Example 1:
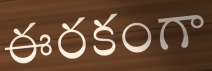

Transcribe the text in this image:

ఈరకంగా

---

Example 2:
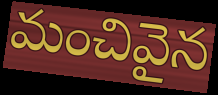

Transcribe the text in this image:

మంచివైన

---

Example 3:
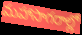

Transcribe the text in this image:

మహాసాగరాల్లో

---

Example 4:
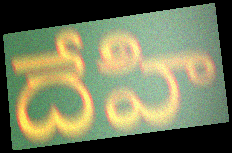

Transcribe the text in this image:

దేహి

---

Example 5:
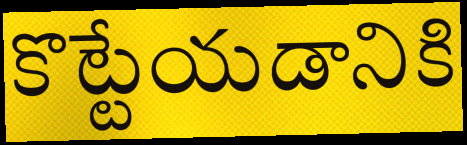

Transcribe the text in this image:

కొట్టేయడానికి